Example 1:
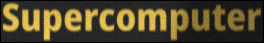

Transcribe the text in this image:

Supercomputer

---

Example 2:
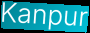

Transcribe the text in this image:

Kanpur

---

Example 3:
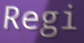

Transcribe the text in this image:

Regi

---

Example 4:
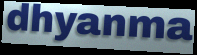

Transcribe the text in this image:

dhyanma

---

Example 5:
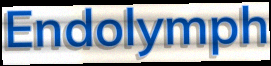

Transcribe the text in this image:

Endolymph